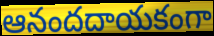
ఆనందదాయకంగా